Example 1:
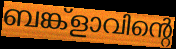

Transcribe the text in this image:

ബങ്ക്ളാവിന്റെ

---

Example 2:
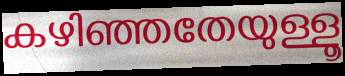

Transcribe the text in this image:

കഴിഞ്ഞതേയുള്ളൂ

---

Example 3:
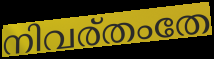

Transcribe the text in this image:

നിവര്തംതേ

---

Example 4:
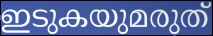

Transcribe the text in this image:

ഇടുകയുമരുത്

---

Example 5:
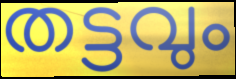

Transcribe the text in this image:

തട്ടവും